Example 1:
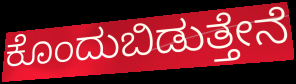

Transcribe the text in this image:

ಕೊಂದುಬಿಡುತ್ತೇನೆ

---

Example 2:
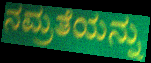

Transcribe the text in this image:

ನಮ್ರತೆಯನ್ನು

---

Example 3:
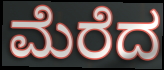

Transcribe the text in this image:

ಮೆರೆದ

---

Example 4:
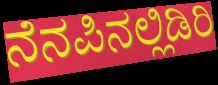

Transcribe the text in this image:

ನೆನಪಿನಲ್ಲಿಡಿರಿ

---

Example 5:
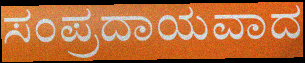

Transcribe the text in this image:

ಸಂಪ್ರದಾಯವಾದ